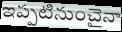
ఇప్పటినుంచైనా